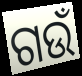
ଗଉଁ